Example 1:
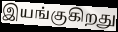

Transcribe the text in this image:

இயங்குகிறது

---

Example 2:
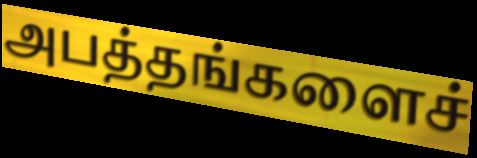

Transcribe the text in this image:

அபத்தங்களைச்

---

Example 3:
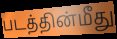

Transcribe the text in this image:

படத்தின்மீது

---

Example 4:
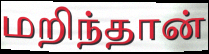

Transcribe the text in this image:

மறிந்தான்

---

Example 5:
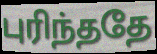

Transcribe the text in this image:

புரிந்ததே